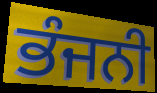
ਭੰਜਨੀ